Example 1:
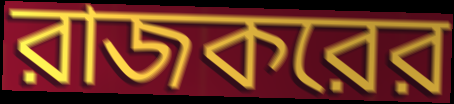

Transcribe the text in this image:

রাজকরের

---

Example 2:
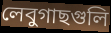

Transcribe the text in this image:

লেবুগাছগুলি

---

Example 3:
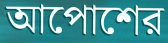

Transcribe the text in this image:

আপোশের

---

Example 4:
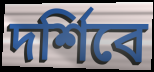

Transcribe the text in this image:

দর্শিবে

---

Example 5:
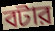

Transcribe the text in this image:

বটার